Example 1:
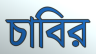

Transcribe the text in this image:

চাবির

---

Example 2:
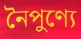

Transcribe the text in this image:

নৈপুণ্যে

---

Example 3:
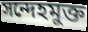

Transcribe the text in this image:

সন্দেহমুক্ত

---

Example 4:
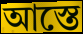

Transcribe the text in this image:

আস্তে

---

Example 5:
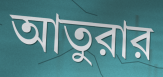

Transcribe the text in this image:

আতুরার